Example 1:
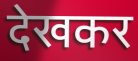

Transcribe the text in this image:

देखकर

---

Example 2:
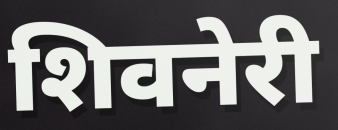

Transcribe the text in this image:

शिवनेरी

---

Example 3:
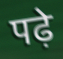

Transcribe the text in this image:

पढ़े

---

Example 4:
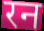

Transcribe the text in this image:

रन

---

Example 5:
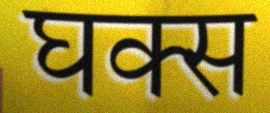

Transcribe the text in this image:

घक्स